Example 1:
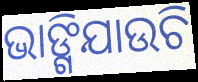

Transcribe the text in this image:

ଭାଙ୍ଗିଯାଉଚି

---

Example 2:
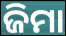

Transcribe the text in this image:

ଜିମା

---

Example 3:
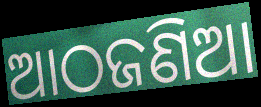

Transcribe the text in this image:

ଆଠଜଣିଆ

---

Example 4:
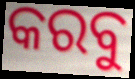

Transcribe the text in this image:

କରବୁ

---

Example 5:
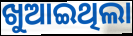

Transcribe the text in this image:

ଖୁଆଇଥିଲା